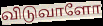
விடுவாளோ